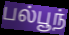
பல்பூந்